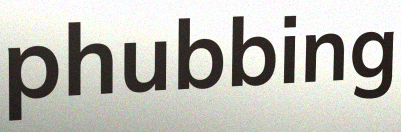
phubbing